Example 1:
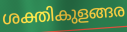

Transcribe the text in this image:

ശക്തികുളങ്ങര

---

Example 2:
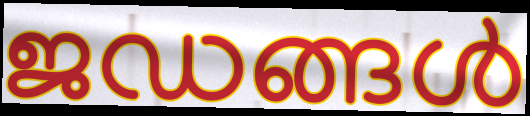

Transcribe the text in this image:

ജഡങ്ങൾ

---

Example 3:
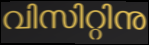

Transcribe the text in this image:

വിസിറ്റിനു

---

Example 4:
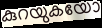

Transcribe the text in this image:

കുറയുകയോ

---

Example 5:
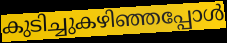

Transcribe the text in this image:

കുടിച്ചുകഴിഞ്ഞപ്പോൾ